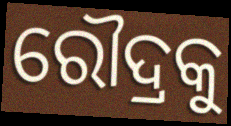
ରୌଦ୍ରକୁ